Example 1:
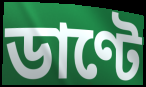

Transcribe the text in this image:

ডাণ্টে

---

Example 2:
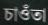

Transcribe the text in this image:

চাওঁতা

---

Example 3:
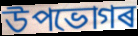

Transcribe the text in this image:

উপভোগৰ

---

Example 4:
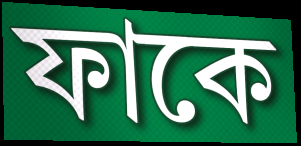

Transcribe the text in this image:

ফাকে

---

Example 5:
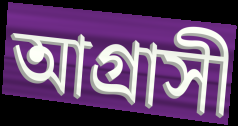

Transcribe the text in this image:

আগ্ৰাসী